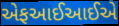
એફઆઈઆઈએ